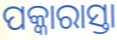
ପକ୍କାରାସ୍ତା